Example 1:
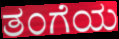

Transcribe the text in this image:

ತಂಗೆಯ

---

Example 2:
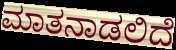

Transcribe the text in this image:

ಮಾತನಾಡಲಿದೆ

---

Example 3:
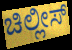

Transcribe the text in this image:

ಚಿಲ್ಲೀಸ್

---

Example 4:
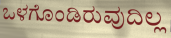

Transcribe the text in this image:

ಒಳಗೊಂಡಿರುವುದಿಲ್ಲ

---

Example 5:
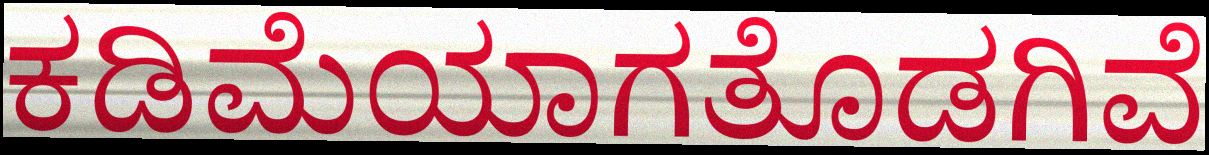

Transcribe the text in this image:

ಕಡಿಮೆಯಾಗತೊಡಗಿವೆ